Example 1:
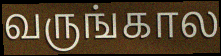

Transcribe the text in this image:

வருங்கால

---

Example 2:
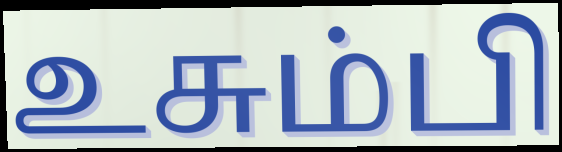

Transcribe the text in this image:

உசும்பி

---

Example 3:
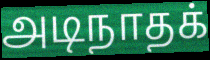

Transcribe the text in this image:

அடிநாதக்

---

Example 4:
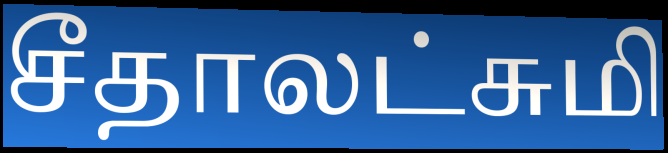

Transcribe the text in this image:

சீதாலட்சுமி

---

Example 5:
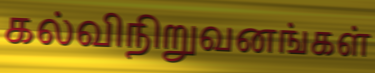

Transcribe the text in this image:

கல்விநிறுவனங்கள்